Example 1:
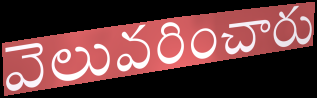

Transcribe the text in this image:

వెలువరించారు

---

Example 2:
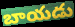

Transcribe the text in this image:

బాయడు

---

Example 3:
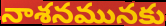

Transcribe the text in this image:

నాశనమునకు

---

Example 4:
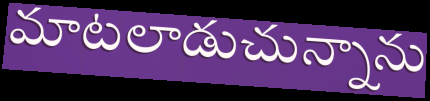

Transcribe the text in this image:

మాటలాడుచున్నాను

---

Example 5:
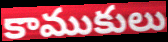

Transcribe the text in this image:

కాముకులు